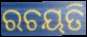
ରଚୟତି